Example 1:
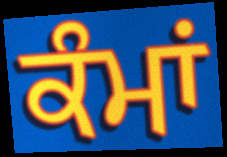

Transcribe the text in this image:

ਕੰਮਾਂ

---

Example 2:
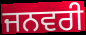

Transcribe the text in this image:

ਜਨਵਰੀ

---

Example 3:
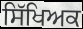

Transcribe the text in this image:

ਸਿੱਖਿਅਕ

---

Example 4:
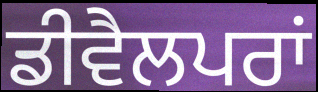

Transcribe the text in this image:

ਡੀਵੈਲਪਰਾਂ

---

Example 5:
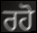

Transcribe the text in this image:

ਰਹੋ